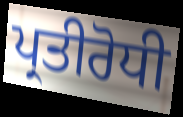
ਪ੍ਰਤੀਰੋਧੀ